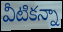
వీటికన్నా